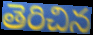
తెరిచిన